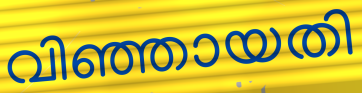
വിഞ്ഞായതി